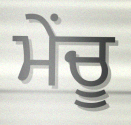
ਮੇਂਚੂ